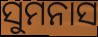
ସୁମନାସ